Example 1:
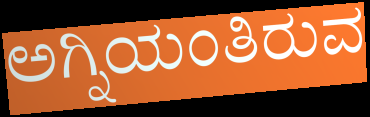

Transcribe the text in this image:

ಅಗ್ನಿಯಂತಿರುವ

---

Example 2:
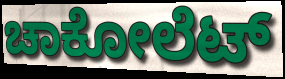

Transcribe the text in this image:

ಚಾಕೋಲೆಟ್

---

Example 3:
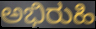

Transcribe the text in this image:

ಅಭಿರುಹಿ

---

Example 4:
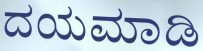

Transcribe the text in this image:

ದಯಮಾಡಿ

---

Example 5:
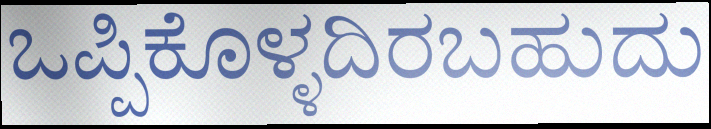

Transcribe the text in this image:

ಒಪ್ಪಿಕೊಳ್ಳದಿರಬಹುದು